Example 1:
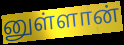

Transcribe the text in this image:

னுள்ளான்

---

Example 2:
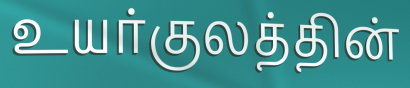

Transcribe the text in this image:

உயர்குலத்தின்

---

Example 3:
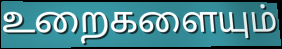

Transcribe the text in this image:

உறைகளையும்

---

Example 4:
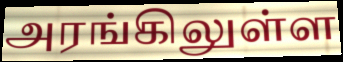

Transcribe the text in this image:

அரங்கிலுள்ள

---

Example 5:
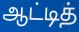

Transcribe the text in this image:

ஆட்டித்